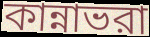
কান্নাভরা